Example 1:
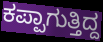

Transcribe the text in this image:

ಕಪ್ಪಾಗುತ್ತಿದ್ದ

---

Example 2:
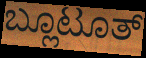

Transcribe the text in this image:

ಬ್ಲೂಟೂತ್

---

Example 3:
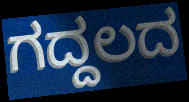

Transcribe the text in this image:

ಗದ್ದಲದ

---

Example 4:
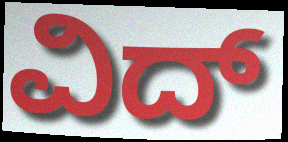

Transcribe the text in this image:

ವಿದ್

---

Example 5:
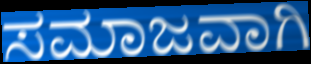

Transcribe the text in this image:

ಸಮಾಜವಾಗಿ